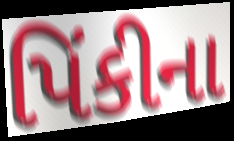
પિંકીના